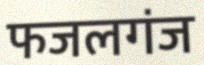
फजलगंज